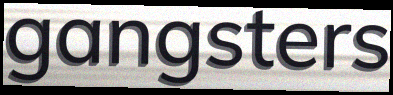
gangsters